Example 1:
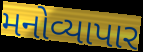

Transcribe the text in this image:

મનોવ્યાપાર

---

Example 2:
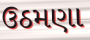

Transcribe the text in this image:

ઉઠમણા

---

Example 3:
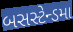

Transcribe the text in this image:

બસસ્ટેન્ડમા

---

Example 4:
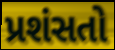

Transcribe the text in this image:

પ્રશંસતો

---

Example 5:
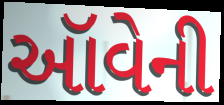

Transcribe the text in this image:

ઑવેની